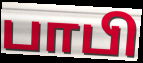
பாபி